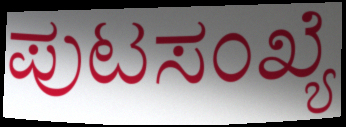
ಪುಟಸಂಖ್ಯೆ